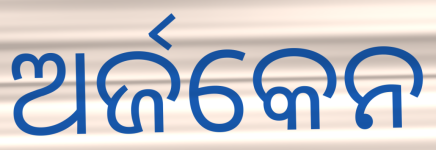
ଅର୍ଜକେନ